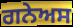
ਗਨੇਅਸ